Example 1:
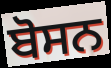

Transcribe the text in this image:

ਬੋਸਨ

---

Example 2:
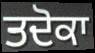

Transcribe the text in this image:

ਤਦੋਕਾ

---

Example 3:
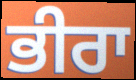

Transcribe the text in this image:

ਭੀਰਾ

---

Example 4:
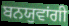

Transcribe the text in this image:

ਬਨਯੁਵਾਂਗੀ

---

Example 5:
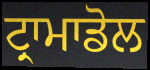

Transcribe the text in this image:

ਟ੍ਰਾਮਾਡੋਲ